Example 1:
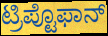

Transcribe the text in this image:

ಟ್ರಿಪ್ಟೊಫಾನ್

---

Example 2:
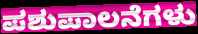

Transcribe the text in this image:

ಪಶುಪಾಲನೆಗಳು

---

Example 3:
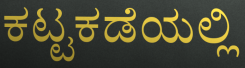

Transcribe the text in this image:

ಕಟ್ಟಕಡೆಯಲ್ಲಿ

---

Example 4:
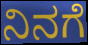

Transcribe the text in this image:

ನಿನಗೆ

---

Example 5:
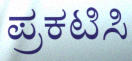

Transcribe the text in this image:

ಪ್ರಕಟಿಸಿ